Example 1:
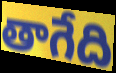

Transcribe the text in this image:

తాగేది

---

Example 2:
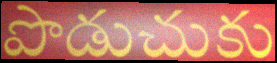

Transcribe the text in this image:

పొడుచుకు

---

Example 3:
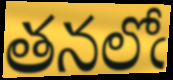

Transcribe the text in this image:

తనలోఁ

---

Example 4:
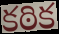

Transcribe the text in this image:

కఠిక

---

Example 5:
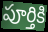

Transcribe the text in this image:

పూర్తికి